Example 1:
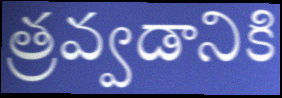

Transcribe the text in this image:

త్రవ్వడానికి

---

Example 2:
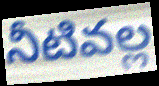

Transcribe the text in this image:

నీటివల్ల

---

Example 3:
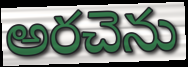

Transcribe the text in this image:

అరచెను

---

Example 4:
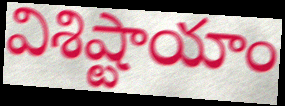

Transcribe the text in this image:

విశిష్టాయాం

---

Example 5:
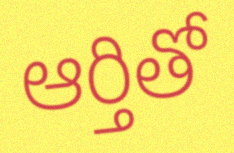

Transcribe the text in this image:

ఆర్తితో